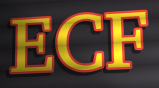
ECF